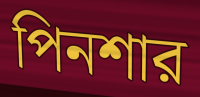
পিনশার